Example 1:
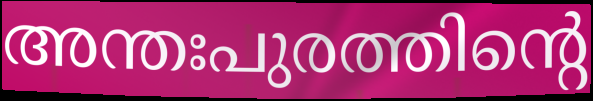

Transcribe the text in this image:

അന്തഃപുരത്തിന്റെ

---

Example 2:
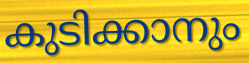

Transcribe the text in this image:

കുടിക്കാനും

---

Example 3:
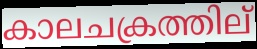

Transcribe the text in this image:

കാലചക്രത്തില്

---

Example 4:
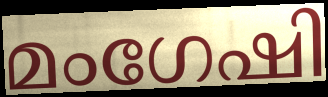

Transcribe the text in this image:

മംഗേഷി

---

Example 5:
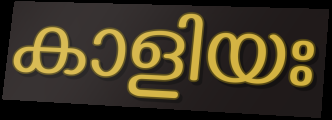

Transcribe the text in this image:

കാളിയഃ